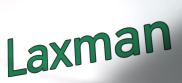
Laxman